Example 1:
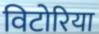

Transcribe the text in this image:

विटोरिया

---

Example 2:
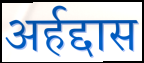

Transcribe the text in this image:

अर्हद्दास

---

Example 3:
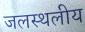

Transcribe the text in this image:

जलस्थलीय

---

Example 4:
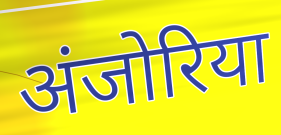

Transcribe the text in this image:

अंजोरिया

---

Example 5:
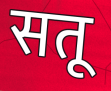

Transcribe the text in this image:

सतू